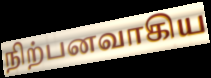
நிற்பனவாகிய